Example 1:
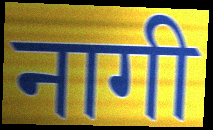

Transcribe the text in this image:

नागी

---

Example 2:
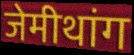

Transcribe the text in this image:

जेमीथांग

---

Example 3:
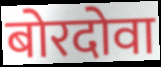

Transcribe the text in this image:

बोरदोवा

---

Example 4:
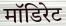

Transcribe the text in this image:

मॉडिरेट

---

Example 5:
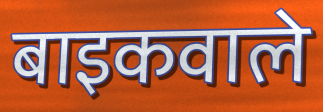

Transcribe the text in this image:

बाइकवाले